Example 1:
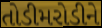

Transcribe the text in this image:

તોડીમરોડીને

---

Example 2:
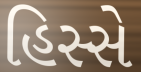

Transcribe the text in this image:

હિસ્સે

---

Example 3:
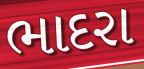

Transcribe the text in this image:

ભાદરા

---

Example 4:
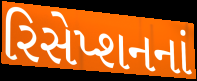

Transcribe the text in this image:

રિસેપ્શનનાં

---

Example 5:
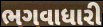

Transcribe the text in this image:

ભગવાધારી